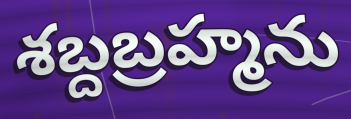
శబ్దబ్రహ్మను